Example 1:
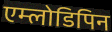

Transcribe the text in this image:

एम्लोडिपिन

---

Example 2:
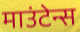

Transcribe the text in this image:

माउंटेन्स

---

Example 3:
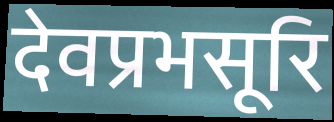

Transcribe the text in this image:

देवप्रभसूरि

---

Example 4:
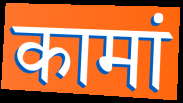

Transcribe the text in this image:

कामां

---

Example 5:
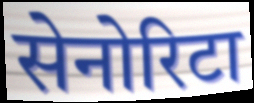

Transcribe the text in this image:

सेनोरिटा